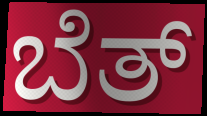
ಬೆತ್